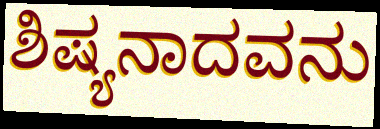
ಶಿಷ್ಯನಾದವನು